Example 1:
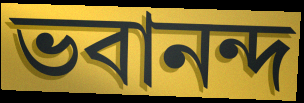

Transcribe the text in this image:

ভবানন্দ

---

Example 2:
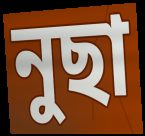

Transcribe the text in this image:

নুছা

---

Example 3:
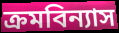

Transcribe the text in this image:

ক্ৰমবিন্যাস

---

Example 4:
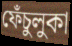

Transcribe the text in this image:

ফেঁচুলুকা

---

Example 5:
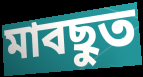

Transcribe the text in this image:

মাবছুত